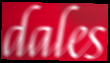
dales